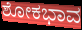
ಶೋಕಭಾವ